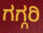
ಗಗ್ಗರಿ